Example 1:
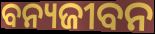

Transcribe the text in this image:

ବନ୍ୟଜୀବନ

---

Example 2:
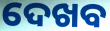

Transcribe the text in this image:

ଦେଖବ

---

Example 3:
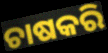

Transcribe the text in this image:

ଚାଷକରି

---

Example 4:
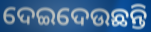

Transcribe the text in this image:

ଦେଇଦେଉଛନ୍ତି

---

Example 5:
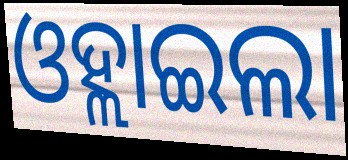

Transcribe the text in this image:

ଓହ୍ଲାଇଲା